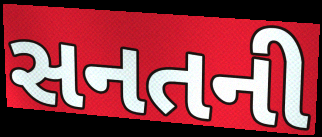
સનતની